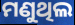
ମଣୁଥିଲ